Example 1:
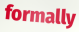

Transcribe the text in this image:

formally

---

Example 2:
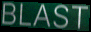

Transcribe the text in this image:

BLAST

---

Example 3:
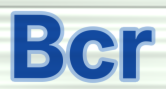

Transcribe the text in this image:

Bcr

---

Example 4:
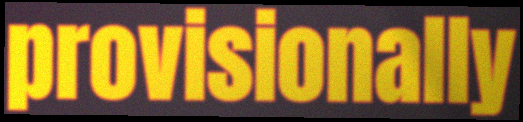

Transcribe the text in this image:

provisionally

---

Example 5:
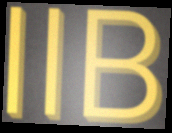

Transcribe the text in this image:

IIB